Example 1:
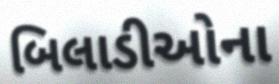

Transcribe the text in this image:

બિલાડીઓના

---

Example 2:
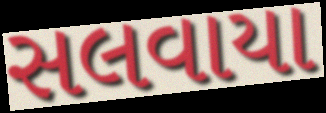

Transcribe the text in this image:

સલવાયા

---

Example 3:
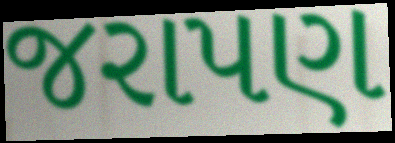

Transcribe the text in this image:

જરાપણ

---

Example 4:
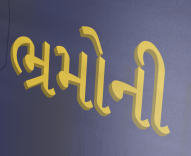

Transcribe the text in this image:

ભ્રમોની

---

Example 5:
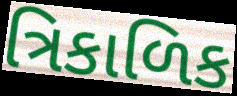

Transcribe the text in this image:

ત્રિકાળિક